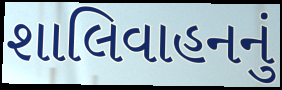
શાલિવાહનનું